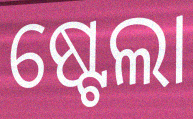
ଷ୍ଟେଲା